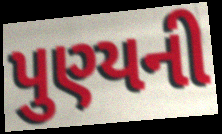
પુણ્યની